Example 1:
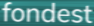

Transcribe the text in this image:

fondest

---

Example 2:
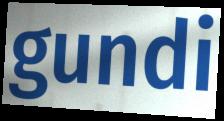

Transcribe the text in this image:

gundi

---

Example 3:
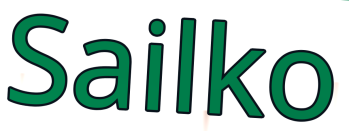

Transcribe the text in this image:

Sailko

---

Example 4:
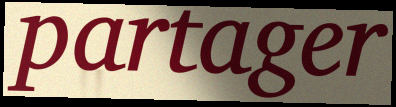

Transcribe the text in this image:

partager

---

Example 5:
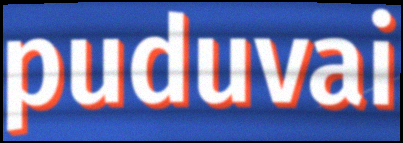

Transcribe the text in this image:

puduvai